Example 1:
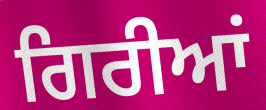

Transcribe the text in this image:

ਗਿਰੀਆਂ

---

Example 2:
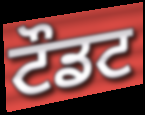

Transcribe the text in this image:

ਟੌਡਟ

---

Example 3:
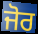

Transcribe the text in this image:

ਜੋਰ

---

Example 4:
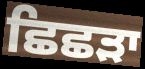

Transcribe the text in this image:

ਛਿਛੜਾ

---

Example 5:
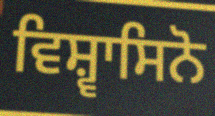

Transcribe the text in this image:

ਵਿਸ਼੍ਵਾਸਿਨੋ